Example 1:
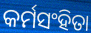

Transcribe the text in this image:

କର୍ମସଂହିତା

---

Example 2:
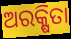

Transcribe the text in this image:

ଅରକ୍ଷିତା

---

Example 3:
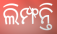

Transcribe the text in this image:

ଲିମ୍ଫନ୍ତି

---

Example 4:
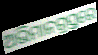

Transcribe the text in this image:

ଅଭିମାନଗ୍ରସ୍ତରେ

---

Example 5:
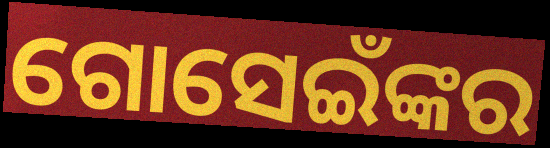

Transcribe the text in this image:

ଗୋସେଇଁଙ୍କର